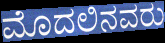
ಮೊದಲಿನವರು